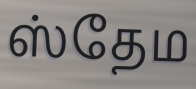
ஸ்தேம